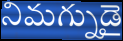
నిమగ్నుడై